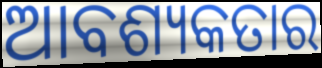
ଆବଶ୍ୟକତାର